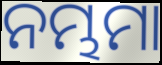
ନମ୍ଭମା